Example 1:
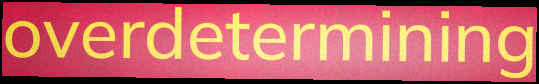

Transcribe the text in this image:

overdetermining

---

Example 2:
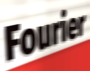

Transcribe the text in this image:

Fourier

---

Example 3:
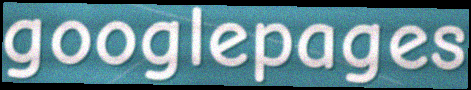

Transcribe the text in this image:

googlepages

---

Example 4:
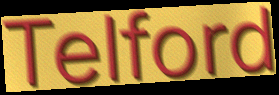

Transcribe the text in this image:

Telford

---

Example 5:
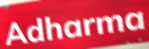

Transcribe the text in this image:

Adharma